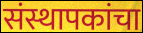
संस्थापकांचा